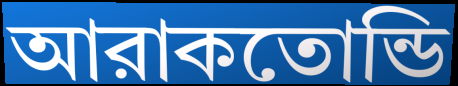
আরাকতোন্ডি